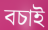
বচাই